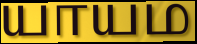
யாயம